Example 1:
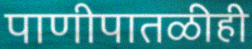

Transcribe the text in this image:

पाणीपातळीही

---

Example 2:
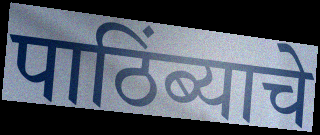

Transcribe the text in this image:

पाठिंब्याचे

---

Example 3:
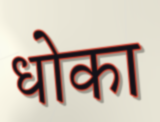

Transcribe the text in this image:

धोका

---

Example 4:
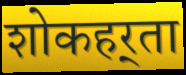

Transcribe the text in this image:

शोकहर्ता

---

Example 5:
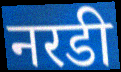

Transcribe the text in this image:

नरडी